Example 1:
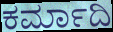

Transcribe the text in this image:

ಕರ್ಮಾದಿ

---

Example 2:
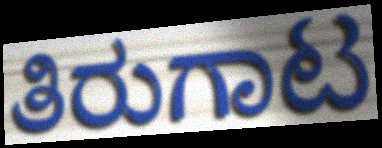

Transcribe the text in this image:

ತಿರುಗಾಟ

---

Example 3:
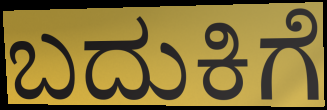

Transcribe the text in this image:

ಬದುಕಿಗೆ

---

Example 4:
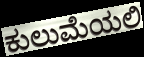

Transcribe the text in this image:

ಕುಲುಮೆಯಲಿ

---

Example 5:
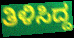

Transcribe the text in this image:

ತಿಳಿಸಿದ್ದ